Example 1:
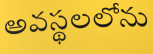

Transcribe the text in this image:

అవస్థలలోను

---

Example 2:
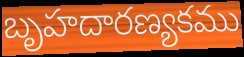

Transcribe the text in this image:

బృహదారణ్యకము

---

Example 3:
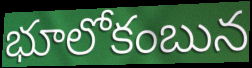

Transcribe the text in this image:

భూలోకంబున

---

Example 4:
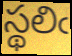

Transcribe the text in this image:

స్థలిఁ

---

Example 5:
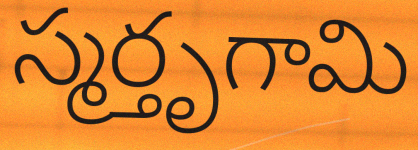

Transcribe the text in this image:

స్మర్తృగామి